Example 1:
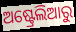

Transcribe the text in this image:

ଅଷ୍ଟ୍ରେଲିଆରୁ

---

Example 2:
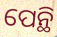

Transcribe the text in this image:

ପେନ୍ଥି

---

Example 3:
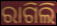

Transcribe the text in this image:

ରାଗିଲି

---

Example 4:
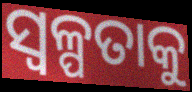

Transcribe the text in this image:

ସ୍ଵଳ୍ପତାକୁ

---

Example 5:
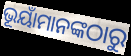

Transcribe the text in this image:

ଭୂୟାଁମାନଙ୍କଠାରୁ